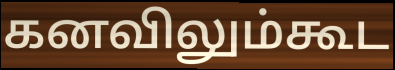
கனவிலும்கூட